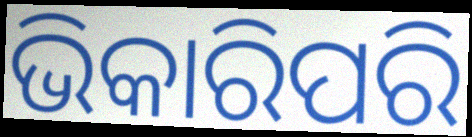
ଭିକାରିପରି